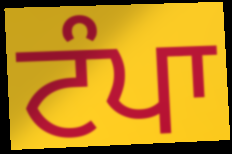
ਟੰਪਾ